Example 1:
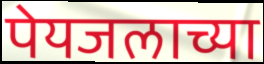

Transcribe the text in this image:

पेयजलाच्या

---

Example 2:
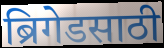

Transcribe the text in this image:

ब्रिगेडसाठी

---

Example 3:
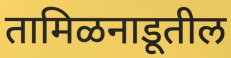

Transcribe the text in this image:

तामिळनाडूतील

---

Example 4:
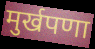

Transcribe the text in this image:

मुर्खपणा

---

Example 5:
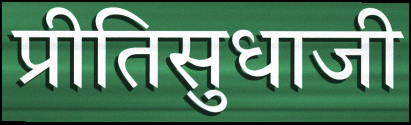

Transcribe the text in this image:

प्रीतिसुधाजी